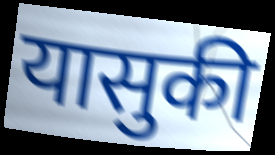
यासुकी